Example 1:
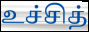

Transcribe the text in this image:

உச்சித்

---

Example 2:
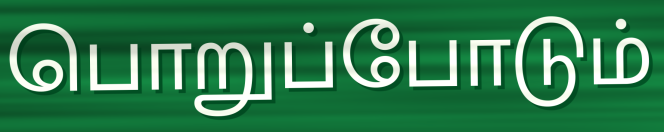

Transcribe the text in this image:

பொறுப்போடும்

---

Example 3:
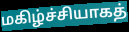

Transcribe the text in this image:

மகிழ்ச்சியாகத்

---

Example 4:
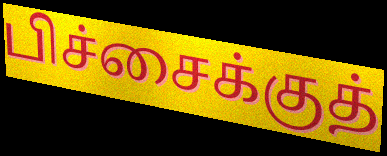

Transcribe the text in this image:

பிச்சைக்குத்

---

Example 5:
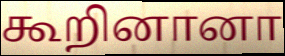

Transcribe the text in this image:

கூறினானா